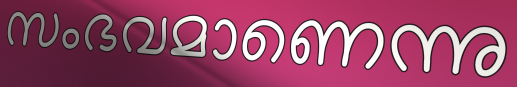
സംഭവമാണെന്നു